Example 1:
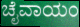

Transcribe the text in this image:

ಚೈವಾಯಂ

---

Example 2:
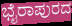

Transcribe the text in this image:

ಭೈರಾಪುರದ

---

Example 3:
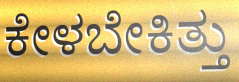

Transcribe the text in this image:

ಕೇಳಬೇಕಿತ್ತು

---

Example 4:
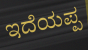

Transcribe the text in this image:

ಇದೆಯಪ್ಪ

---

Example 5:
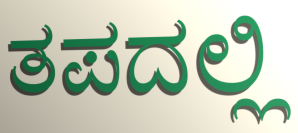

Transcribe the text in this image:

ತಪದಲ್ಲಿ